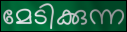
മേടിക്കുന്ന